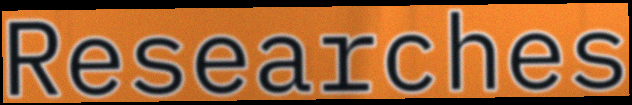
Researches